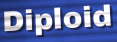
Diploid